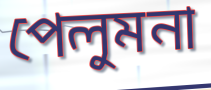
পেলুমনা